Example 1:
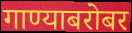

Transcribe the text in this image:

गाण्याबरोबर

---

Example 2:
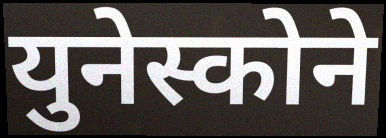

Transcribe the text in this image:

युनेस्कोने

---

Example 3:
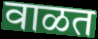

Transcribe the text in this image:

वाळत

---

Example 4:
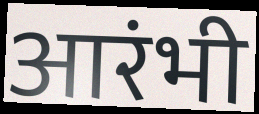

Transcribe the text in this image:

आरंभी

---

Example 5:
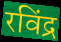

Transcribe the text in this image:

रविंद्र